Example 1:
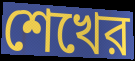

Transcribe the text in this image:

শেখের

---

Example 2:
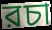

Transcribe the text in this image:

রচা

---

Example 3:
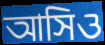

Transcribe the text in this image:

আসিও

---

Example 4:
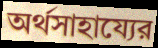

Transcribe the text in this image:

অর্থসাহায্যের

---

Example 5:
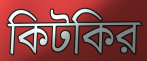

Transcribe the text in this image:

কিটকির